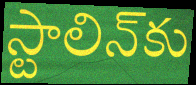
స్టాలిన్‌కు